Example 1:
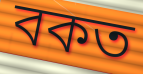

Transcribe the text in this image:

বকত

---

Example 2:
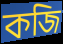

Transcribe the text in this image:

কজি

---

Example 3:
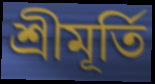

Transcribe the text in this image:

শ্রীমূর্তি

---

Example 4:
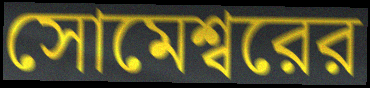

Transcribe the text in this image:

সোমেশ্বরের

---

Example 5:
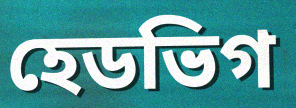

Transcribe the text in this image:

হেডভিগ